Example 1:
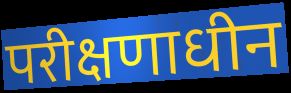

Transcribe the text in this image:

परीक्षणाधीन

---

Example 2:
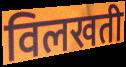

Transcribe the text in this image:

विलखती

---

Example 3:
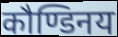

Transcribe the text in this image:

कौण्डिनय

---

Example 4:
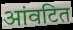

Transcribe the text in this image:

आंवटित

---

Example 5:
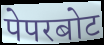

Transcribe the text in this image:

पेपरबोट